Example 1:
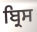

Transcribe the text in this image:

ਬ੍ਰਿਸ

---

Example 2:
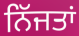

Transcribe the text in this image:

ਨਿੱਜਤਾਂ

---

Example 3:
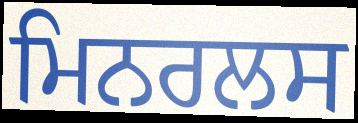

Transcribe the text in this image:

ਮਿਨਰਲਸ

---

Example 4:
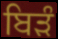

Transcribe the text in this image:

ਬਿੜੰ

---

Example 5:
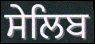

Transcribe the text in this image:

ਸੇਲਿਬ